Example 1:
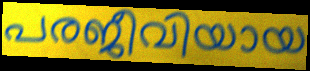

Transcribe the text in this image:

പരജീവിയായ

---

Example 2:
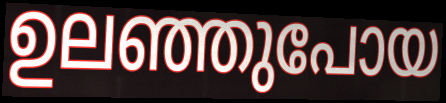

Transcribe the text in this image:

ഉലഞ്ഞുപോയ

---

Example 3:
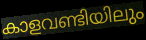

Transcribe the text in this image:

കാളവണ്ടിയിലും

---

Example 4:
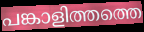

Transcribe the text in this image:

പങ്കാളിത്തത്തെ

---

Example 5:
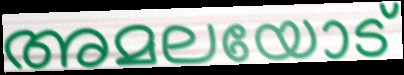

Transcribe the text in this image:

അമലയോട്